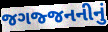
જગજ્જનનીનું